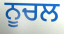
ਨੂਚਲ